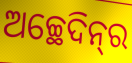
ଅଚ୍ଛେଦିନ୍‌ର